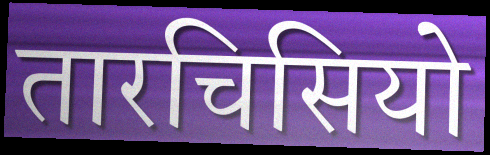
तारचिसियो